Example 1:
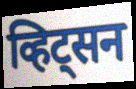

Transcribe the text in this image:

व्हिट्सन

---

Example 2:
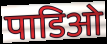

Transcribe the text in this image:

पाडिओ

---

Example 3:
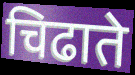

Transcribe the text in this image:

चिढाते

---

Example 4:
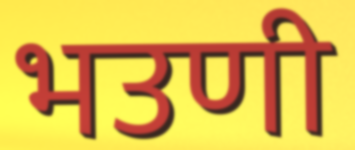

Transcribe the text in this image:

भउणी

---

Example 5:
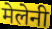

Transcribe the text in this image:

मेलेनी